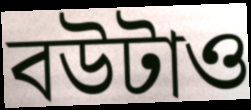
বউটাও